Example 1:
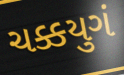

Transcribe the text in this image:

ચક્કયુગં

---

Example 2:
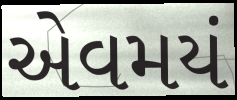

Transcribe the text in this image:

એવમયં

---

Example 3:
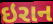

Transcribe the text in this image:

ઇરાન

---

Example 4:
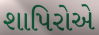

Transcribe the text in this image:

શાપિરોએ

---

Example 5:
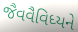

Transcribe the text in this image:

જૈવવૈવિધ્યને